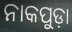
ନାକପୁଡ଼ା